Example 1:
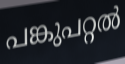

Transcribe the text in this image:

പങ്കുപറ്റൽ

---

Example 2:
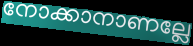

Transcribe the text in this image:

നോക്കാനാണല്ലേ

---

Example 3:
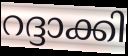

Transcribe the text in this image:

റദ്ദാക്കി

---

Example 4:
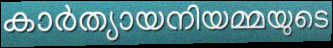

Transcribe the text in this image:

കാർത്യായനിയമ്മയുടെ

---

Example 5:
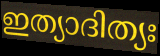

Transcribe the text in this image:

ഇത്യാദിത്യഃ